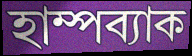
হাম্পব্যাক